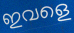
ഇവളെ